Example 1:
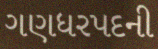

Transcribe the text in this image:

ગણધરપદની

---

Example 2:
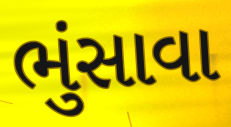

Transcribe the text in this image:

ભુંસાવા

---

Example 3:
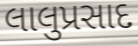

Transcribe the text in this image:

લાલુપ્રસાદ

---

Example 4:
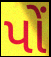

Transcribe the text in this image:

પોં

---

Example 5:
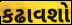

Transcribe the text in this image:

કઢાવશો